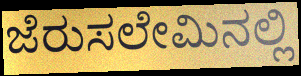
ಜೆರುಸಲೇಮಿನಲ್ಲಿ